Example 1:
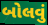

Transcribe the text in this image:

બોલવું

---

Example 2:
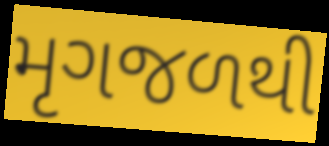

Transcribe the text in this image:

મૃગજળથી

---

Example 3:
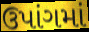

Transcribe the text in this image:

ઉપાંગમાં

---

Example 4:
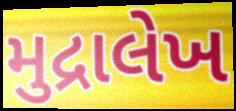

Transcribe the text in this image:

મુદ્રાલેખ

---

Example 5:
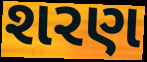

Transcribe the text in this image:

શરણ